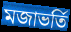
মজাভর্তি